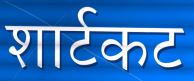
शार्टकट